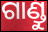
ଗାଣ୍ଡୁ